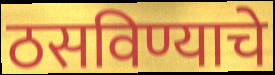
ठसविण्याचे